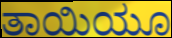
ತಾಯಿಯೂ